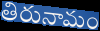
తిరునామం